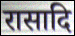
रासादि